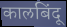
कालबिंदू